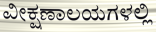
ವೀಕ್ಷಣಾಲಯಗಳಲ್ಲಿ